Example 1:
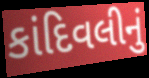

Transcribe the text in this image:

કાંદિવલીનું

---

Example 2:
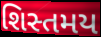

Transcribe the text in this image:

શિસ્તમય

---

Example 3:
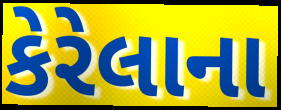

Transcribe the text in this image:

કેરેલાના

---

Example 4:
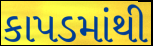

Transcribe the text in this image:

કાપડમાંથી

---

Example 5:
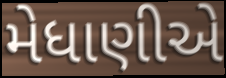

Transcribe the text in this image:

મેધાણીએ